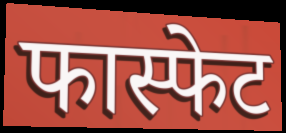
फास्फेट